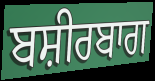
ਬਸ਼ੀਰਬਾਗ